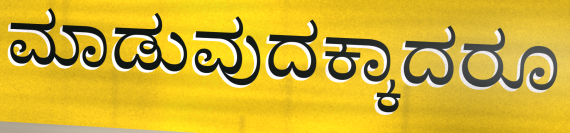
ಮಾಡುವುದಕ್ಕಾದರೂ